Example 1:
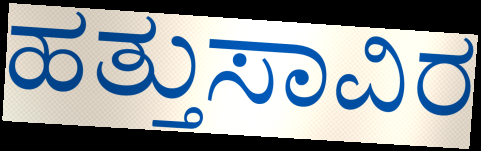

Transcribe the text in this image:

ಹತ್ತುಸಾವಿರ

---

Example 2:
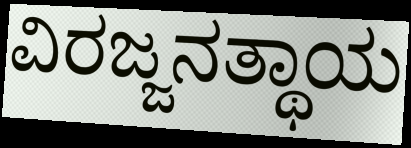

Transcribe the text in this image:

ವಿರಜ್ಜನತ್ಥಾಯ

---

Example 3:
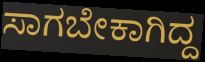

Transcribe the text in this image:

ಸಾಗಬೇಕಾಗಿದ್ದ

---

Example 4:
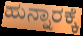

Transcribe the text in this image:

ಹುನ್ನಾರಕ್ಕೆ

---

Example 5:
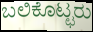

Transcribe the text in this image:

ಬಲಿಕೊಟ್ಟರು